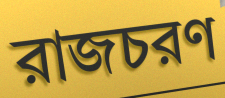
রাজচরণ